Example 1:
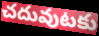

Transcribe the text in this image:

చదువుటకు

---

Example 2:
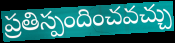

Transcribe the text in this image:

ప్రతిస్పందించవచ్చు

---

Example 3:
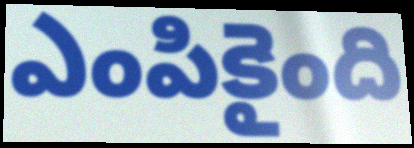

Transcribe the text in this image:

ఎంపికైంది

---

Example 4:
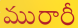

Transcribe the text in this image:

మురారీ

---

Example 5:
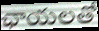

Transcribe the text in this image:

ఛాయలతో